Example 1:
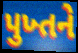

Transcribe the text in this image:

પુખ્તને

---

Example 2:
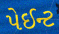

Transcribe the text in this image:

પેઈન્ટ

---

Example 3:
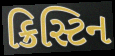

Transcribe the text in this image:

ક્રિસ્ટિન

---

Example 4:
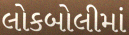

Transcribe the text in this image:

લોકબોલીમાં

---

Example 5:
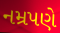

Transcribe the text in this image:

નમ્રપણે